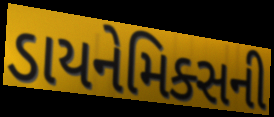
ડાયનેમિક્સની